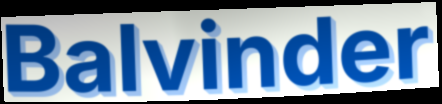
Balvinder